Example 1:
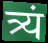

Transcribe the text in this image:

त्र्यं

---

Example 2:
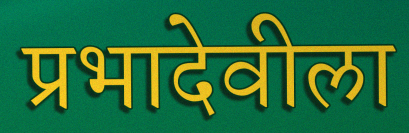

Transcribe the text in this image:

प्रभादेवीला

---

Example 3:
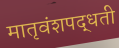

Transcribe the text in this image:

मातृवंशपद्धती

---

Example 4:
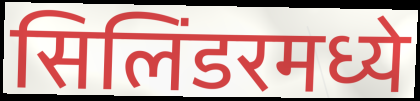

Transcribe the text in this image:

सिलिंडरमध्ये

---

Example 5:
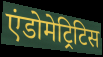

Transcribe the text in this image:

एंडोमेट्रिटिस